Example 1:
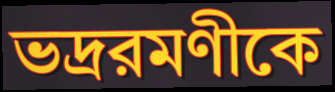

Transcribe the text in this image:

ভদ্ররমণীকে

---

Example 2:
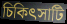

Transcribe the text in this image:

চিকিৎসাটি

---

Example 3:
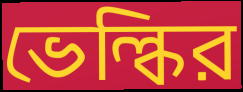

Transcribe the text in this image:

ভেল্কির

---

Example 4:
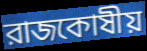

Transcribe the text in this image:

রাজকোষীয়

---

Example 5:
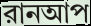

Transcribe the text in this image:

রানআপ